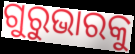
ଗୁରୁଭାରକୁ